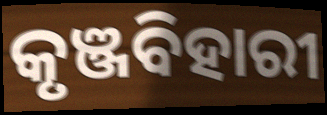
କୃଞ୍ଜବିହାରୀ